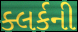
ક્લર્કની